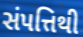
સંપત્તિથી